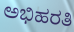
ಅಭಿಹರತಿ